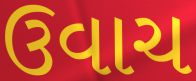
ઉવાચ